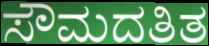
ಸೌಮದತಿತ